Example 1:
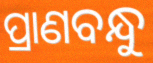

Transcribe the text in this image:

ପ୍ରାଣବନ୍ଧୁ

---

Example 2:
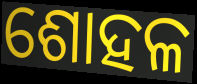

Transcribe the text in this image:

ଶୋହଳ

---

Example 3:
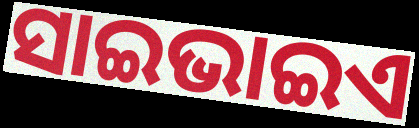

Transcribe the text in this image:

ସାଇଭାଇଏ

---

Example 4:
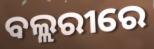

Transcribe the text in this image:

ବଲ୍ଲରୀରେ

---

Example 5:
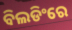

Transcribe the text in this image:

ବିଲଡିଂରେ